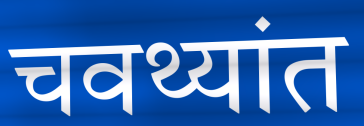
चवथ्यांत